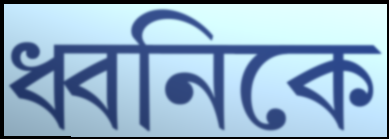
ধ্বনিকে